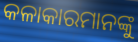
କଳାକାରମାନଙ୍କୁ